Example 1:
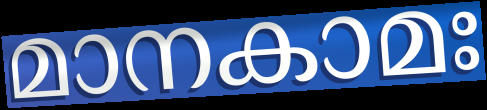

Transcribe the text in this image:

മാനകാമഃ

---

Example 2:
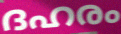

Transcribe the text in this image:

ദഹരം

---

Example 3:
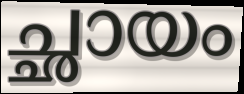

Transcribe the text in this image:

ച്ഛായം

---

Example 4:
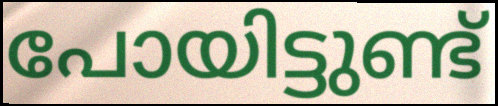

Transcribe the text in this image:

പോയിട്ടുണ്ട്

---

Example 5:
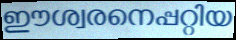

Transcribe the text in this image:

ഈശ്വരനെപ്പറ്റിയ